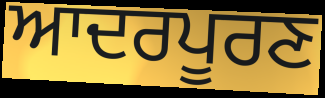
ਆਦਰਪੂਰਣ